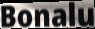
Bonalu